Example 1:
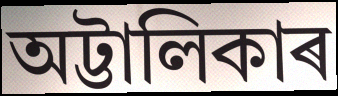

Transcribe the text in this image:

অট্টালিকাৰ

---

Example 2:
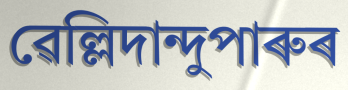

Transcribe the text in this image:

ৱেল্লিদান্দুপাৰুৰ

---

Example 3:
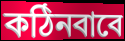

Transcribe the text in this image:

কঠিনবাবে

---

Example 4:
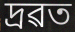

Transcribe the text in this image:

দ্ৰৱত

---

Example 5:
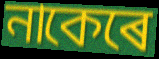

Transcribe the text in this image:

নাকেৰে